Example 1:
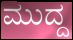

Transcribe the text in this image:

ಮುದ್ದ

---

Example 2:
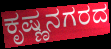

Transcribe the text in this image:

ಕೃಷ್ಣನಗರದ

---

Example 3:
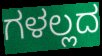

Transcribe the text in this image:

ಗಳಲ್ಲದ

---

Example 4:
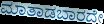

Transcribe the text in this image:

ಮಾತಾಡಬಾರದೇ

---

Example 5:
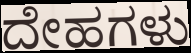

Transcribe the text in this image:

ದೇಹಗಳು